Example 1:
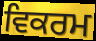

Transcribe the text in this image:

ਵਿਕਰਮ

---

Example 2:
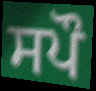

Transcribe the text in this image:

ਸਪੌ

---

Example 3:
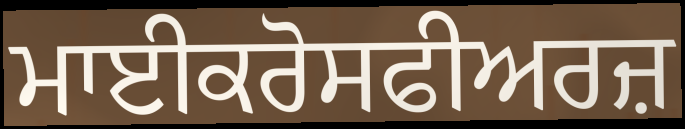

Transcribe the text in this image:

ਮਾਈਕਰੋਸਫੀਅਰਜ਼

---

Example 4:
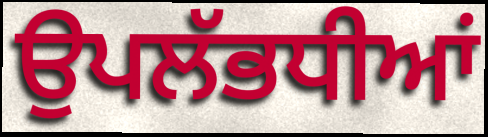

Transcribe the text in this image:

ਉਪਲੱਭਧੀਆਂ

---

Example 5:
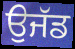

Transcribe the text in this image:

ਉਜੱਡ